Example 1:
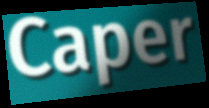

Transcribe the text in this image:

Caper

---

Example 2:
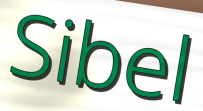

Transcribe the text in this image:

Sibel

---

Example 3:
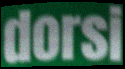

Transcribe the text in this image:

dorsi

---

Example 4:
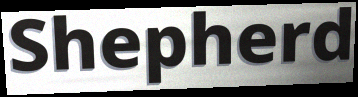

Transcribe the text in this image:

Shepherd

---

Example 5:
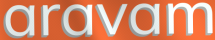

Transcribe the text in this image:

aravam